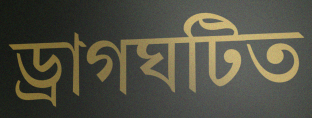
ড্রাগঘটিত